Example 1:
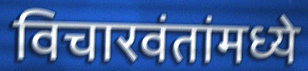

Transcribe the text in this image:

विचारवंतांमध्ये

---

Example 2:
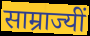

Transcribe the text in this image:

साम्राज्यीं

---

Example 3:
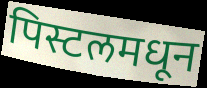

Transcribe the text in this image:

पिस्टलमधून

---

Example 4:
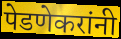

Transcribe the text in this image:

पेडणेकरांनी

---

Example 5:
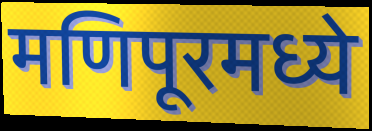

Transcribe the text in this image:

मणिपूरमध्ये